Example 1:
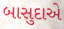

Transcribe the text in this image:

બાસુદાએ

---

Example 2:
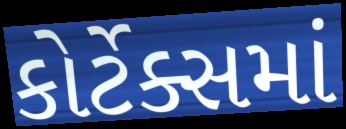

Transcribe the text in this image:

કોર્ટેક્સમાં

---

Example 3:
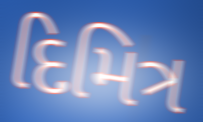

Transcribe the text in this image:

દિમિત્ર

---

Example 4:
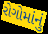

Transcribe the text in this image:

રોગોમાંનું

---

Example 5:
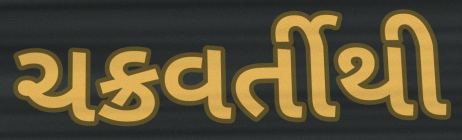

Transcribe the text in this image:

ચક્રવર્તીથી